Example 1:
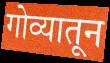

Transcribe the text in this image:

गोव्यातून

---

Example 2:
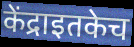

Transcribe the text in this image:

केंद्राइतकेच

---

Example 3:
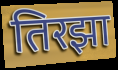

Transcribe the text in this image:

तिरझा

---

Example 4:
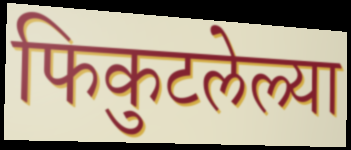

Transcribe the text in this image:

फिकुटलेल्या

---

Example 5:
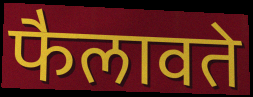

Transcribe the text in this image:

फैलावते